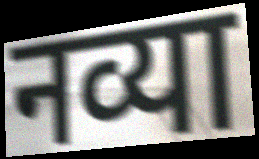
नव्या